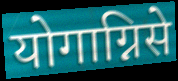
योगाग्निसे